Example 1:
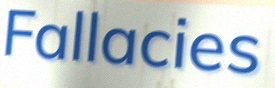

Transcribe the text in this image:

Fallacies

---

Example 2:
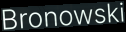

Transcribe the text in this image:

Bronowski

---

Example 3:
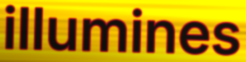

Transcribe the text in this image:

illumines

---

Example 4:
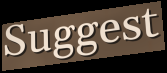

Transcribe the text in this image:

Suggest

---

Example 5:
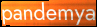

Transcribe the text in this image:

pandemya